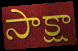
సాక్షా